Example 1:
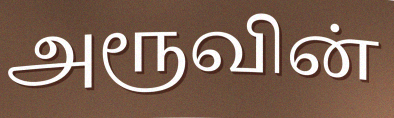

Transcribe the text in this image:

அரூவின்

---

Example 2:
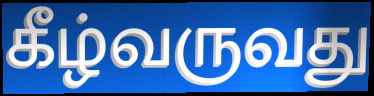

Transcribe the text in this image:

கீழ்வருவது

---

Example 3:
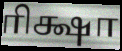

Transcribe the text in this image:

ரிக்ஷா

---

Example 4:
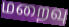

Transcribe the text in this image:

மறைவு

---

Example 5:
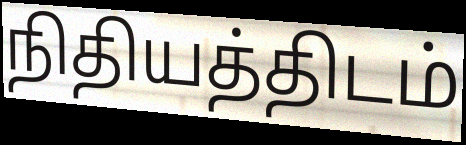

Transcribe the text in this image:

நிதியத்திடம்